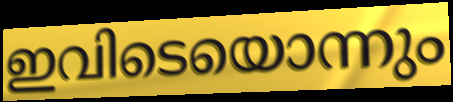
ഇവിടെയൊന്നും